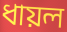
ধায়ল